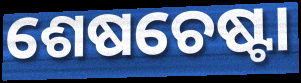
ଶେଷଚେଷ୍ଟା